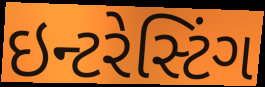
ઇન્ટરેસ્ટિંગ